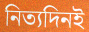
নিত্যদিনই